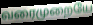
வரைமுறையே